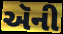
ઍની